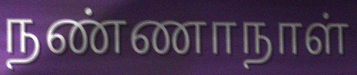
நண்ணாநாள்